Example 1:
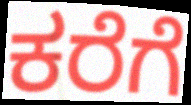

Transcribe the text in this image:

ಕರೆಗೆ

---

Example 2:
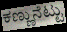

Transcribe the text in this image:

ಕಣ್ಣುನೆಟ್ಟು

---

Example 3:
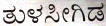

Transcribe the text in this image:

ತುಳಸೀಗಿಡ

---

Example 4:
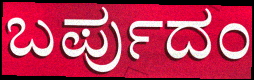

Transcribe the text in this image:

ಬರ್ಪುದಂ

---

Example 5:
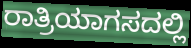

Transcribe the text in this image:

ರಾತ್ರಿಯಾಗಸದಲ್ಲಿ